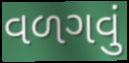
વળગવું